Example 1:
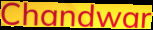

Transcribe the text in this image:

Chandwar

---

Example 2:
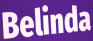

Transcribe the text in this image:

Belinda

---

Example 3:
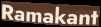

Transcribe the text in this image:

Ramakant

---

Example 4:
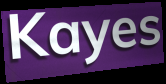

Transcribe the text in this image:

Kayes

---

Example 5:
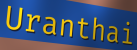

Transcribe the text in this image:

Uranthai